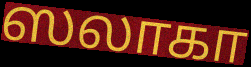
ஸலாகா